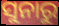
ସୁନାରୁ